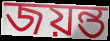
জয়ন্ত